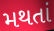
મથતાં